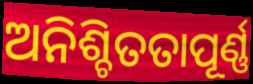
ଅନିଶ୍ଚିତତାପୂର୍ଣ୍ଣ